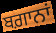
ਬਗ਼ਾਨਾਂ